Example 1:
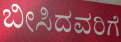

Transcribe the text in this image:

ಬೀಸಿದವರಿಗೆ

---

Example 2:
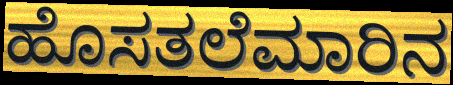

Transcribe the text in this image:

ಹೊಸತಲೆಮಾರಿನ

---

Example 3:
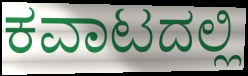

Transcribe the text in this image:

ಕವಾಟದಲ್ಲಿ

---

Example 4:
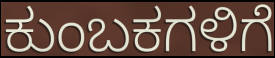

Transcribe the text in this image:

ಕುಂಬಕಗಳಿಗೆ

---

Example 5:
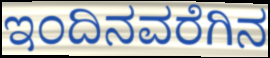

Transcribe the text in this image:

ಇಂದಿನವರೆಗಿನ